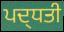
ਪਦ੍ਧਤੀ